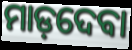
ମାଡ଼ଦେବା